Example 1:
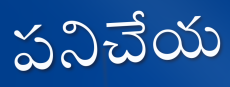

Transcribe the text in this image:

పనిచేయ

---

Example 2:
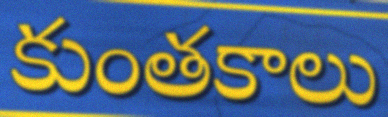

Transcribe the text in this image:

కుంతకాలు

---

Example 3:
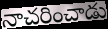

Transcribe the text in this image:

నాచరించాడు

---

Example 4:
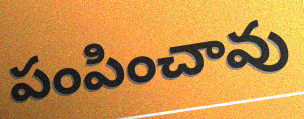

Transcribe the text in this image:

పంపించావు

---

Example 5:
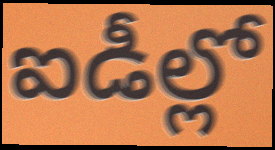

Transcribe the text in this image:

ఐడీల్లో